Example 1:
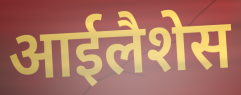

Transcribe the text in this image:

आईलैशेस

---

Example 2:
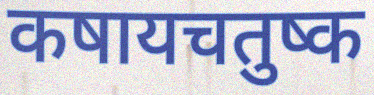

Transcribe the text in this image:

कषायचतुष्क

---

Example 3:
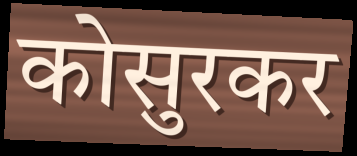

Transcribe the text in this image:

कोसुरकर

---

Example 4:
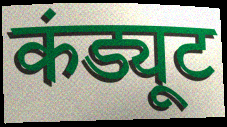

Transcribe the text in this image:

कंड्यूट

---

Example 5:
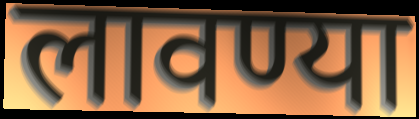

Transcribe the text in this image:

लावण्या